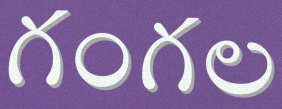
గంగల